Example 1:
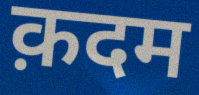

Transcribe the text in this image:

क़दम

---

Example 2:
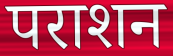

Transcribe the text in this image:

पराशन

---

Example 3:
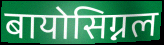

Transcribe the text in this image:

बायोसिग्नल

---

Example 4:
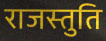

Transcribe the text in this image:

राजस्तुति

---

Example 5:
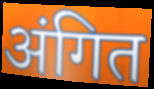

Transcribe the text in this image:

अंगित